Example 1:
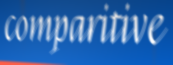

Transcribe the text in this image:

comparitive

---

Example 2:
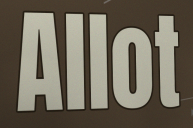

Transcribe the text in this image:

Allot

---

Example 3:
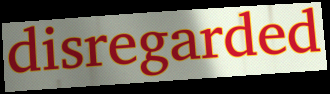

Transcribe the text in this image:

disregarded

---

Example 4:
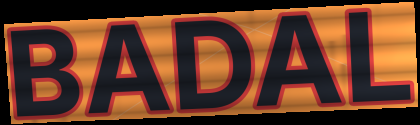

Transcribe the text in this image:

BADAL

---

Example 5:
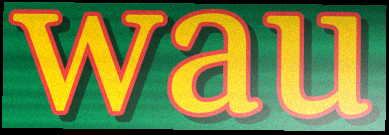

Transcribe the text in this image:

wau